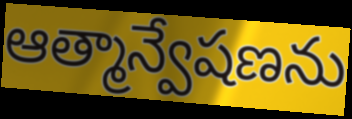
ఆత్మాన్వేషణను